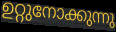
ഉറ്റുനോക്കുന്നു